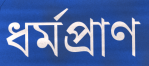
ধৰ্মপ্ৰাণ